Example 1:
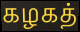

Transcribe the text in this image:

கழகத்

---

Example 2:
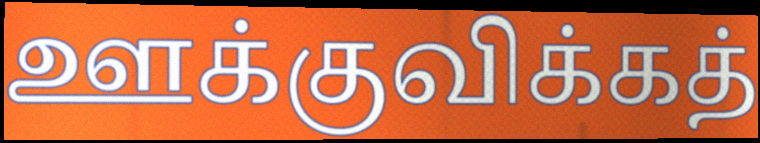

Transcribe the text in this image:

ஊக்குவிக்கத்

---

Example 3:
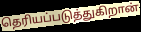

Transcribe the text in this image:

தெரியப்படுத்துகிறான்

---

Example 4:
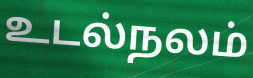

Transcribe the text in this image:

உடல்நலம்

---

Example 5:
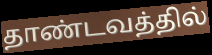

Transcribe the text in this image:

தாண்டவத்தில்